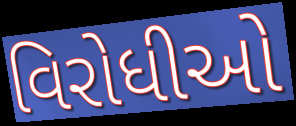
વિરોધીઓ